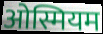
ओस्मियम